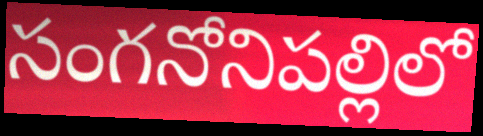
సంగనోనిపల్లిలో